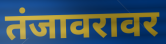
तंजावरावर